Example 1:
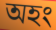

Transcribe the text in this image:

অহং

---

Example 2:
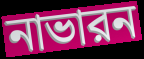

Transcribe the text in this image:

নাভারন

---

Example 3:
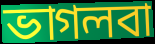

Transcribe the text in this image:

ভাগলবা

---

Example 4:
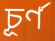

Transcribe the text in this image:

চূর্ণ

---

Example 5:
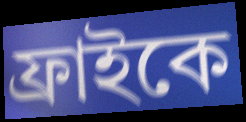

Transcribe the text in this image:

ফ্রাইকে